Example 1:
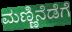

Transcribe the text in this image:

ಮಣ್ಣಿನೆಡೆಗೆ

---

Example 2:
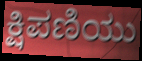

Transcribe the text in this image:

ಕ್ಷಿಪಣಿಯು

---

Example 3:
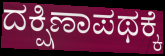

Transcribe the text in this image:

ದಕ್ಷಿಣಾಪಥಕ್ಕೆ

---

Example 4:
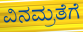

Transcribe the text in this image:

ವಿನಮ್ರತೆಗೆ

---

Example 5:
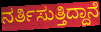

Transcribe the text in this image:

ನರ್ತಿಸುತ್ತಿದ್ದಾನೆ